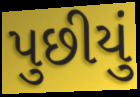
પુછીયું